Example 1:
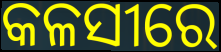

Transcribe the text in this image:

କଳସୀରେ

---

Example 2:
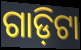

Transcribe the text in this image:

ଗାଡ଼ିଟା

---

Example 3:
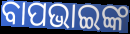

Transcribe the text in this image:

ବାପଭାଇଙ୍କ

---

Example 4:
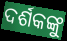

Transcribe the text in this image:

ଦର୍ଶକଙ୍କୁ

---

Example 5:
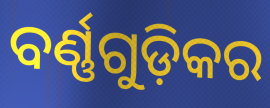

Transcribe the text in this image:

ବର୍ଣ୍ଣଗୁଡ଼ିକର